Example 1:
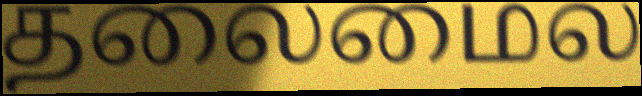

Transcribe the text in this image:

தலைமைல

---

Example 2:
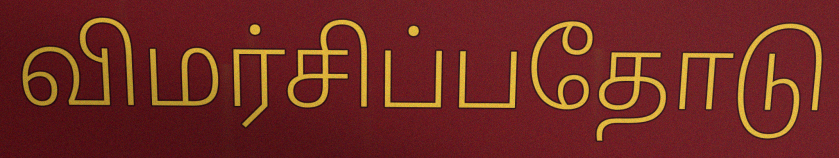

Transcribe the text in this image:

விமர்சிப்பதோடு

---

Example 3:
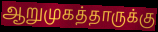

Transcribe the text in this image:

ஆறுமுகத்தாருக்கு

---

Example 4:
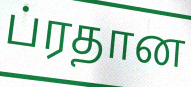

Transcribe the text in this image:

ப்ரதான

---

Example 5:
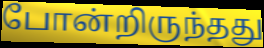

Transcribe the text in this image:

போன்றிருந்தது